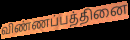
விண்ணப்பத்தினை